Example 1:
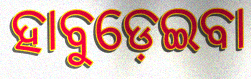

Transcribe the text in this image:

ହାବୁଡ଼େଇବା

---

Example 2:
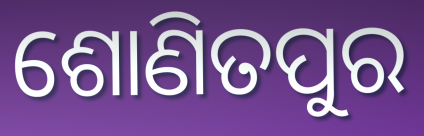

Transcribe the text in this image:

ଶୋଣିତପୁର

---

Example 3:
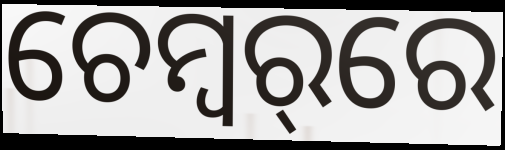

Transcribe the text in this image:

ଚେମ୍ବର୍‌ରେ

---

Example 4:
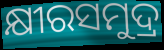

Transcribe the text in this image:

କ୍ଷୀରସମୁଦ୍ର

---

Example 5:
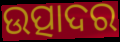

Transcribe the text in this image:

ଉତ୍ପାଦର